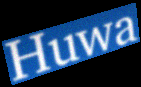
Huwa